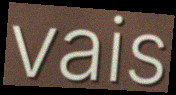
vais